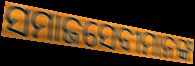
ସମାଜସେବୀମାନଙ୍କ